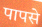
पापसे